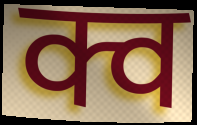
क्व